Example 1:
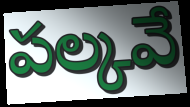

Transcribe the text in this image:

పల్కవే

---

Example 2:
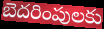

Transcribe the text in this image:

బెదరింపులకు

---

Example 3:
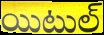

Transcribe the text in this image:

యిటుల్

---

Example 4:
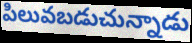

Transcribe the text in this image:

పిలువబడుచున్నాడు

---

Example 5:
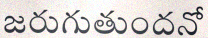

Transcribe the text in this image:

జరుగుతుందనో